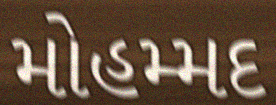
મોહમ્મદ